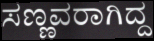
ಸಣ್ಣವರಾಗಿದ್ದ